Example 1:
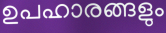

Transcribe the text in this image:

ഉപഹാരങ്ങളും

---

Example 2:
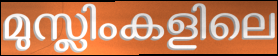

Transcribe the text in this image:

മുസ്ലിംകളിലെ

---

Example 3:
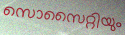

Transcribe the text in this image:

സൊസൈറ്റിയും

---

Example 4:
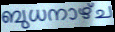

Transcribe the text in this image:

ബുധനാഴ്‌ച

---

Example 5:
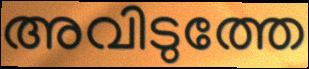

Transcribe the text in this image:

അവിടുത്തേ